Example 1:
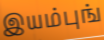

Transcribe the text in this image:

இயம்புங்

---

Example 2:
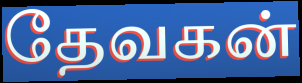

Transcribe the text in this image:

தேவகன்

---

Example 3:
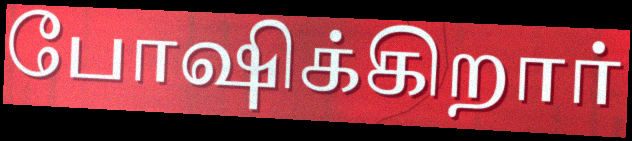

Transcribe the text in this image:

போஷிக்கிறார்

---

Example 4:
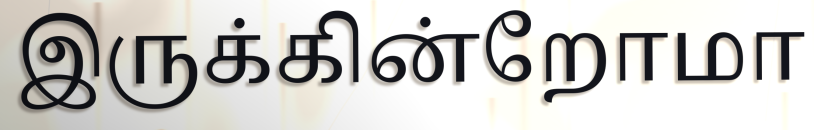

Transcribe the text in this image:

இருக்கின்றோமா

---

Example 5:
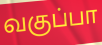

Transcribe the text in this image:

வகுப்பா